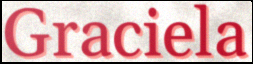
Graciela